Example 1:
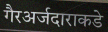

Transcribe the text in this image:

गैरअर्जदाराकडे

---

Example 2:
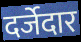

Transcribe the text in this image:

दर्जेदार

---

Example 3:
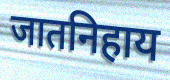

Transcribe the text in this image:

जातनिहाय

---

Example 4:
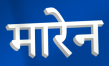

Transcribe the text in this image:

मारेन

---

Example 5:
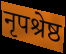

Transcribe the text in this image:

नृपश्रेष्ठ